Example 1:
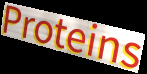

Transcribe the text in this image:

Proteins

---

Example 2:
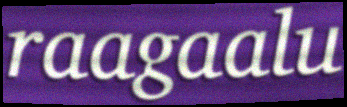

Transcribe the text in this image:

raagaalu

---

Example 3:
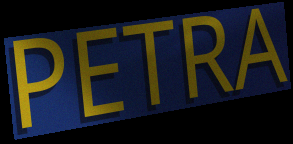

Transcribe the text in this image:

PETRA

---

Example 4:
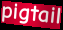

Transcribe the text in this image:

pigtail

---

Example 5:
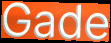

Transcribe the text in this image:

Gade